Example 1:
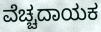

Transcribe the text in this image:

ವೆಚ್ಚದಾಯಕ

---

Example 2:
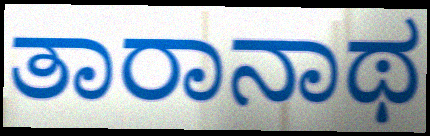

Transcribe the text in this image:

ತಾರಾನಾಥ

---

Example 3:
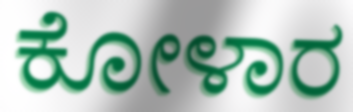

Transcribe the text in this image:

ಕೋಳಾರ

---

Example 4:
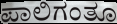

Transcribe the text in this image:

ಪಾಲಿಗಂತೂ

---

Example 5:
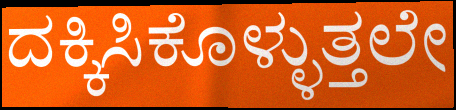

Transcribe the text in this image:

ದಕ್ಕಿಸಿಕೊಳ್ಳುತ್ತಲೇ